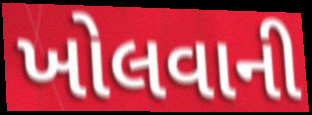
ખોલવાની